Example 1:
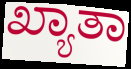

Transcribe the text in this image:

ಖ್ಯಾತಾ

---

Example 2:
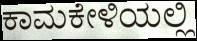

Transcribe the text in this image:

ಕಾಮಕೇಳಿಯಲ್ಲಿ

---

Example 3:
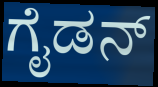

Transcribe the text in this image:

ಗೈಡನ್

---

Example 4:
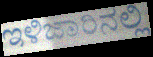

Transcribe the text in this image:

ಇಳಿಜಾರಿನಲ್ಲಿ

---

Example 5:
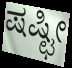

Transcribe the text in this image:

ಷಷ್ಟೀ